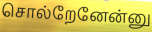
சொல்றேனேன்னு